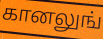
கானலுங்